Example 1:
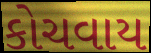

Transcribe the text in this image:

કોચવાય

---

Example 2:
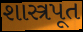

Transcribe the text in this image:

શાસ્ત્રપૂત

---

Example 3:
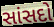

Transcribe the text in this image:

સાંસદો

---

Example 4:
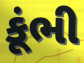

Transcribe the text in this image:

કૂંભી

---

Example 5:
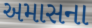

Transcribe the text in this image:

અમાસના